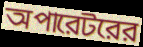
অপারেটরের